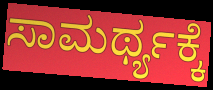
ಸಾಮರ್ಥ್ಯಕ್ಕೆ